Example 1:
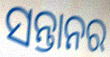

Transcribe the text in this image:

ସନ୍ତାନର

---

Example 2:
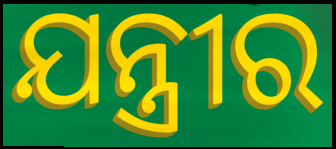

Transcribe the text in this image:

ଯନ୍ତ୍ରୀର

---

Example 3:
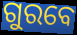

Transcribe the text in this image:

ଗୁରବେ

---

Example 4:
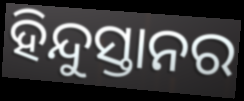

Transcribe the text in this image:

ହିନ୍ଦୁସ୍ତାନର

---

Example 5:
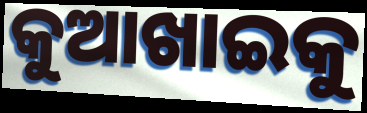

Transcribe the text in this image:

କୁଆଖାଇକୁ